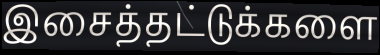
இசைத்தட்டுக்களை